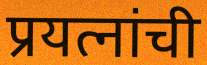
प्रयत्नांची